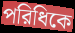
পরিধিকে